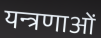
यन्त्रणाओं